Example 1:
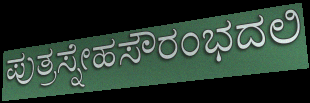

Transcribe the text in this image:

ಪುತ್ರಸ್ನೇಹಸೌರಂಭದಲಿ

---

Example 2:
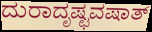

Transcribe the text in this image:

ದುರಾದೃಷ್ಟವಷಾತ್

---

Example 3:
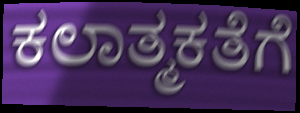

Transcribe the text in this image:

ಕಲಾತ್ಮಕತೆಗೆ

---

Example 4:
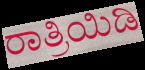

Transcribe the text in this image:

ರಾತ್ರಿಯಿಡಿ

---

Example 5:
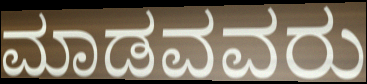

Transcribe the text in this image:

ಮಾಡವವರು